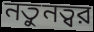
নতুনত্বর